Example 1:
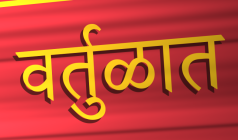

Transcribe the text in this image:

वर्तुळात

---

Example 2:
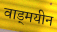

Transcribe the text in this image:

वाड्‌मयीन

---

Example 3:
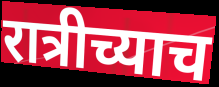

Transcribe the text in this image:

रात्रीच्याच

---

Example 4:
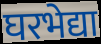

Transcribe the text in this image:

घरभेद्या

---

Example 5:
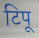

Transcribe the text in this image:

टिपू